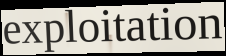
exploitation